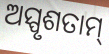
ଅସ୍ପୃଶତାମ୍